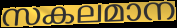
സകലമാന